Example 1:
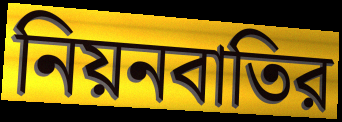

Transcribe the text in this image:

নিয়নবাতির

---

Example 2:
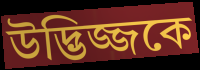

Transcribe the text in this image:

উদ্ভিজ্জকে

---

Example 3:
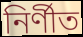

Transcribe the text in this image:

নির্ণীত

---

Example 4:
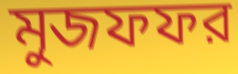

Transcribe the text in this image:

মুজফফর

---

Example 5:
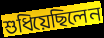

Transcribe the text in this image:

শুধিয়েছিলেন